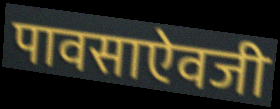
पावसाऐवजी